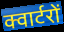
क्वार्टरों